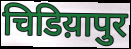
चिडिय़ापुर